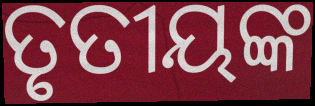
ତୃତୀୟଙ୍କ